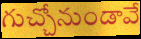
గుచ్చోనుండావే